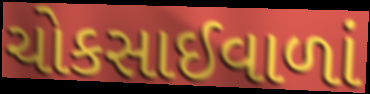
ચોકસાઈવાળાં